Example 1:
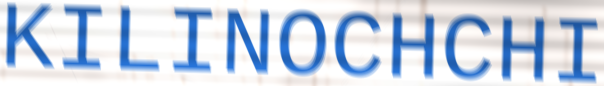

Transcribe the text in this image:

KILINOCHCHI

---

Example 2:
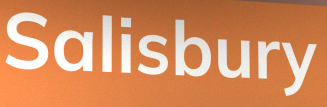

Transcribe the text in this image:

Salisbury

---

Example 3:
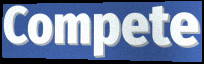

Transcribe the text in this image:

Compete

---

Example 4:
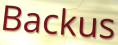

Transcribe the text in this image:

Backus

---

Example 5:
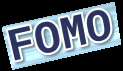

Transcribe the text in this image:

FOMO